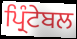
ਪ੍ਰਿੰਟੇਬਲ